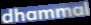
dhammal